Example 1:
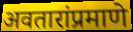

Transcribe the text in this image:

अवतारांप्रमाणे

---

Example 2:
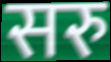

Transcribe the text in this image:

सरु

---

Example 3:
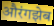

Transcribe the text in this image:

औरंगझेब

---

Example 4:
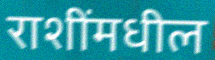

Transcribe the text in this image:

राशींमधील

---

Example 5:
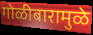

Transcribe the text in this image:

गोळीबारामुळे